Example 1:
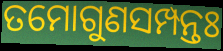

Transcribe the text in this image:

ତମୋଗୁଣସମ୍ପନ୍ତଃ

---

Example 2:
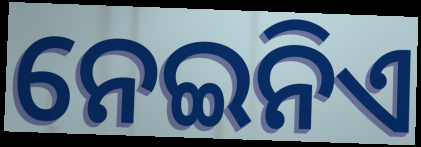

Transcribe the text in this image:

ନେଇନିଏ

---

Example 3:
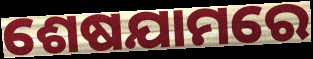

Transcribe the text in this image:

ଶେଷଯାମରେ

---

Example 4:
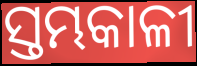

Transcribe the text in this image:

ସ୍ତମ୍ଭକାଳୀ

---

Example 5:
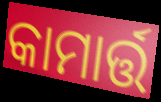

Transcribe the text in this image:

କାମାର୍ତ୍ତ